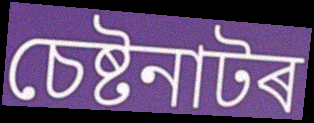
চেষ্টনাটৰ